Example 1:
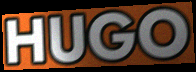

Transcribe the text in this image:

HUGO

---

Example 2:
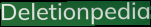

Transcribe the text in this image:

Deletionpedia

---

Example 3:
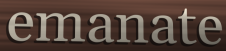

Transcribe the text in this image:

emanate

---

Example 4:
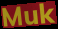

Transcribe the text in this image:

Muk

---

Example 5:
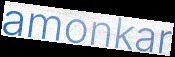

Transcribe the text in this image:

amonkar